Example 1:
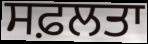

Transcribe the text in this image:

ਸਫ਼ਲਤਾ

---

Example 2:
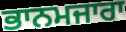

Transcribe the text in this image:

ਭਾਨਮਜਾਰਾ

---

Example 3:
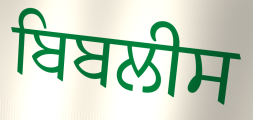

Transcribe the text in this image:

ਬਿਬਲੀਸ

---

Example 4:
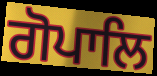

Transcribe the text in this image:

ਗੋਪਾਲਿ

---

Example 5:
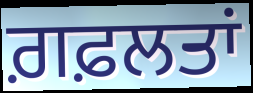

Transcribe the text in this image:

ਗ਼ਫ਼ਲਤਾਂ